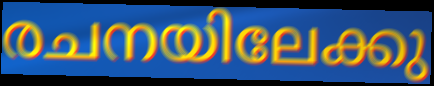
രചനയിലേക്കു